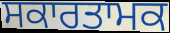
ਸਕਾਰਤਾਮਕ